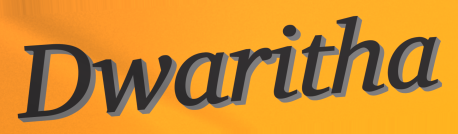
Dwaritha